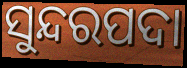
ସୁନ୍ଦରପଦା